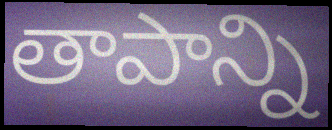
తాపాన్ని